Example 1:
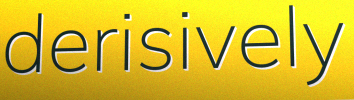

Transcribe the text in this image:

derisively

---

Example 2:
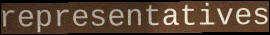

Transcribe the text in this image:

representatives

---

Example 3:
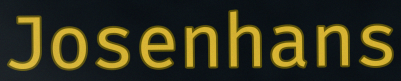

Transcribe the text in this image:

Josenhans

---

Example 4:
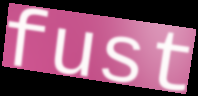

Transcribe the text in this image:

fust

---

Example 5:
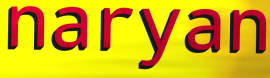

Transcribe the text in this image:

naryan